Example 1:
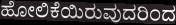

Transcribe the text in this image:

ಹೋಲಿಕೆಯಿರುವುದರಿಂದ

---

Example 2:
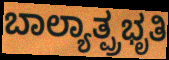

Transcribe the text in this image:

ಬಾಲ್ಯಾತ್ಪ್ರಭೃತಿ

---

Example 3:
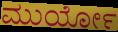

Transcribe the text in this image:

ಮುರ್ಯೋ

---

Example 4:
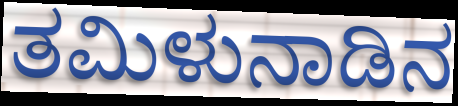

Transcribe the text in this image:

ತಮಿಳುನಾಡಿನ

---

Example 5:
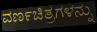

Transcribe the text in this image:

ವರ್ಣಚಿತ್ರಗಳನ್ನು